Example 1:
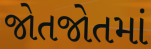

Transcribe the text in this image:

જોતજોતમાં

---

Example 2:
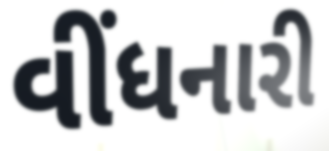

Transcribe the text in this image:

વીંધનારી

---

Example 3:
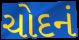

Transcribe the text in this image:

ચોદનં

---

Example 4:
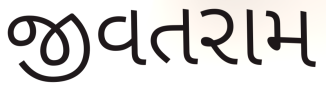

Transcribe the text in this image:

જીવતરામ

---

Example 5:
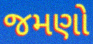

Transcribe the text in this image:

જમણો